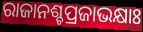
ରାଜାନଶ୍ଚପ୍ରଜାଭକ୍ଷାଃ